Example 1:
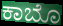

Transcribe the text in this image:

ಕಾಬೊ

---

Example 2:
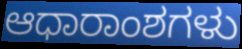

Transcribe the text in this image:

ಆಧಾರಾಂಶಗಳು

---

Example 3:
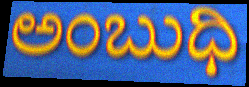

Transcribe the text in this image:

ಅಂಬುಧಿ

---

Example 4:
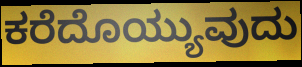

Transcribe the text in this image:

ಕರೆದೊಯ್ಯುವುದು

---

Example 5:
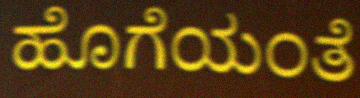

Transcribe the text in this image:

ಹೊಗೆಯಂತೆ